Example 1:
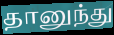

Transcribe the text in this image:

தானுந்து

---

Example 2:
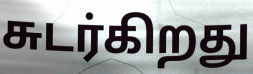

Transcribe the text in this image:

சுடர்கிறது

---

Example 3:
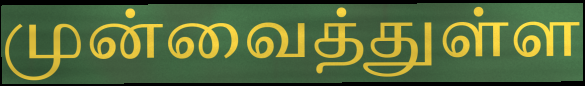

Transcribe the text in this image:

முன்வைத்துள்ள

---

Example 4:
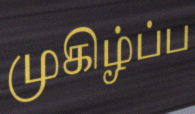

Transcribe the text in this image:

முகிழ்ப்ப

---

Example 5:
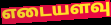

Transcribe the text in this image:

எடையளவு